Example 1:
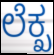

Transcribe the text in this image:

ಲೆಕ್ಖ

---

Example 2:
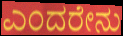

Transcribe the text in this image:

ಎಂದರೇನು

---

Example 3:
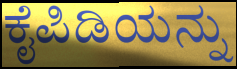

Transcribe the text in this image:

ಕೈಪಿಡಿಯನ್ನು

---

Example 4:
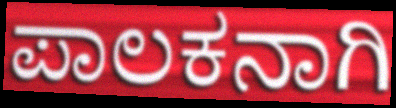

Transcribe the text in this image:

ಪಾಲಕನಾಗಿ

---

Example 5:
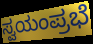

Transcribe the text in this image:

ಸ್ವಯಂಪ್ರಭೆ